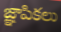
జ్ఞాపికలు